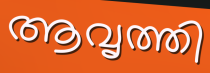
ആവൃത്തി